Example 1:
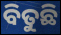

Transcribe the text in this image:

ବିତୁଛି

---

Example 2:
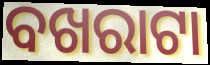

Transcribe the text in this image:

ବଖରାଟା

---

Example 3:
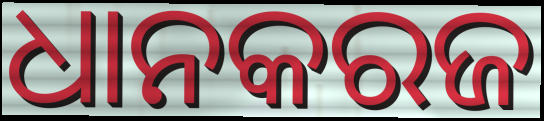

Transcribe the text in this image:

ଧାନକରଜ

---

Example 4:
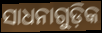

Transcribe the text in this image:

ସାଧନାଗୁଡ଼ିକ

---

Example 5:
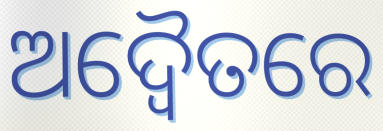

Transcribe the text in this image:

ଅଦ୍ୱୈତରେ